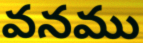
వనము